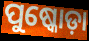
ପୁଷ୍କୋଡ଼ା